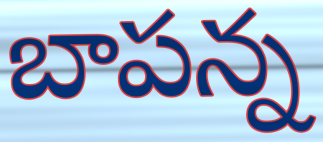
బాపన్న